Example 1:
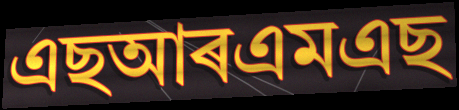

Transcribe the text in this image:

এছআৰএমএছ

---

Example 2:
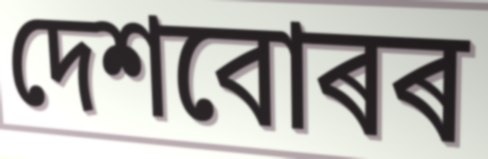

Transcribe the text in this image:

দেশবোৰৰ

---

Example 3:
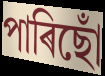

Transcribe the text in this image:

পাৰিছোঁ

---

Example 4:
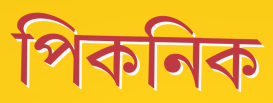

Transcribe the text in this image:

পিকনিক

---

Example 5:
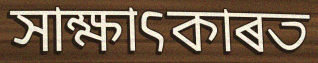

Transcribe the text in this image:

সাক্ষাৎকাৰত